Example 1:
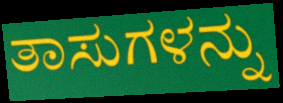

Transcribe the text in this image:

ತಾಸುಗಳನ್ನು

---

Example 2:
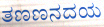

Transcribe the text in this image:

ತಣಣನದಯ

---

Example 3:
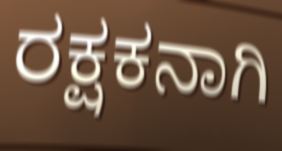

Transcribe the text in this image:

ರಕ್ಷಕನಾಗಿ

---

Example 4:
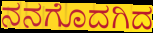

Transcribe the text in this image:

ನನಗೊದಗಿದ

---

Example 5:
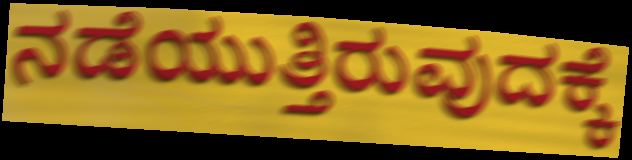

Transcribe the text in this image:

ನಡೆಯುತ್ತಿರುವುದಕ್ಕೆ